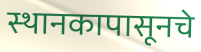
स्थानकापासूनचे